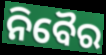
ନିବୈର